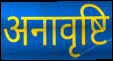
अनावृष्टि